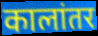
कालांतर